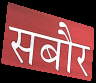
सबौर